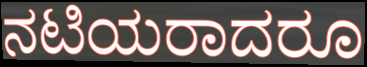
ನಟಿಯರಾದರೂ